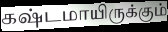
கஷ்டமாயிருக்கும்